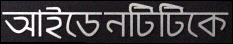
আইডেনটিটিকে